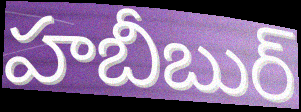
హబీబుర్